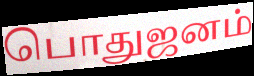
பொதுஜனம்